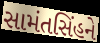
સામંતસિંહને